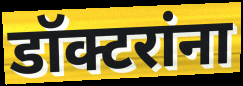
डॉक्टरांना